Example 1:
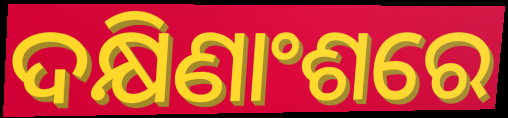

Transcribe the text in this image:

ଦକ୍ଷିଣାଂଶରେ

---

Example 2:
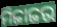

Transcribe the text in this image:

ମିଜାଜର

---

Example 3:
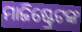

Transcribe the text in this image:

ମାଜିଷ୍ଟ୍ରେଟଙ୍କ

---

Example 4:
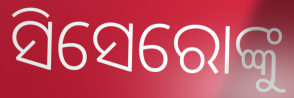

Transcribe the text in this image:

ସିସେରୋଙ୍କୁ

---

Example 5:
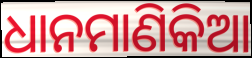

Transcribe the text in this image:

ଧାନମାଣିକିଆ